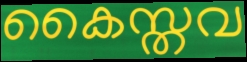
കൈസ്തവ